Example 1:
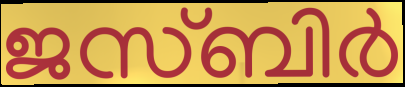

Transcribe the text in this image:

ജസ്ബിർ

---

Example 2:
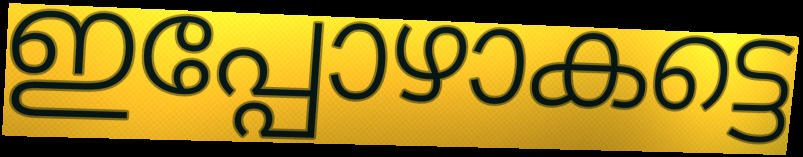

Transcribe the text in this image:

ഇപ്പോഴാകട്ടെ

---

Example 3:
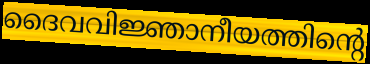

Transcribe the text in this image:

ദൈവവിജ്ഞാനീയത്തിന്റെ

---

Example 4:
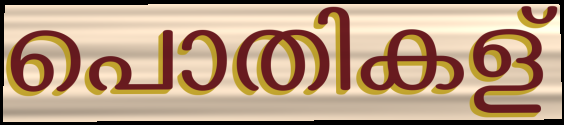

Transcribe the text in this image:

പൊതികള്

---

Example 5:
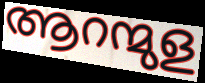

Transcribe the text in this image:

ആറന്മുള